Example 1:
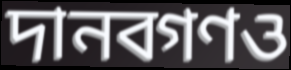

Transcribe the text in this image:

দানবগণও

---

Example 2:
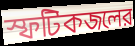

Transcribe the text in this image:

স্ফটিকজলের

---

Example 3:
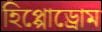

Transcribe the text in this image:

হিপ্পোড্রোম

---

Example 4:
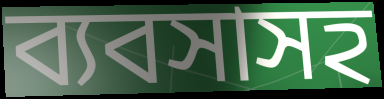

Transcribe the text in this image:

ব্যবসাসহ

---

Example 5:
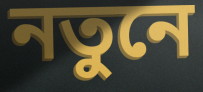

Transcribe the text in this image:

নতুনে